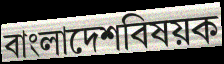
বাংলাদেশবিষয়ক